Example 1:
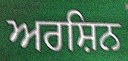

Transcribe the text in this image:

ਅਰਸ਼ਿਨ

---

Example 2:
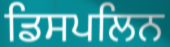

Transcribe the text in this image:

ਡਿਸਪਲਿਨ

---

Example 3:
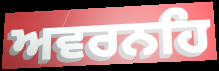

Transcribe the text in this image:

ਅਵਰਨਹਿ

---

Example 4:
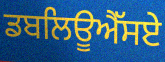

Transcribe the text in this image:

ਡਬਲਿਊਐੱਸਏ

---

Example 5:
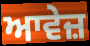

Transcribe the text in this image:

ਆਵੇਜ਼